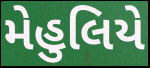
મેહુલિયે